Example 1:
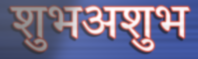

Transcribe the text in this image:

शुभअशुभ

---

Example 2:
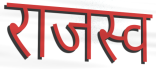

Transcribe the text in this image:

राजस्व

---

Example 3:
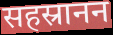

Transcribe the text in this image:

सहस्रानन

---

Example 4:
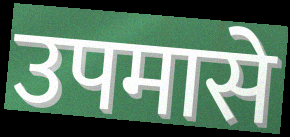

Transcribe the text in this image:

उपमासे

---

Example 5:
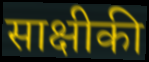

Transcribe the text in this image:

साक्षीकी